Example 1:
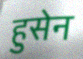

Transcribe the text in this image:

हुसेन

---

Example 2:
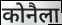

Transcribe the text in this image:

कोनैला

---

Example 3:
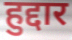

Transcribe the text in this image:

हुद्दार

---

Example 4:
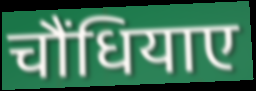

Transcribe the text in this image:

चौंधियाए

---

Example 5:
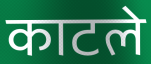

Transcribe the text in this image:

काटले